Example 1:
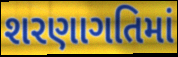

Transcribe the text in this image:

શરણાગતિમાં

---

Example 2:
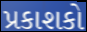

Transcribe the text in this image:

પ્રકાશકો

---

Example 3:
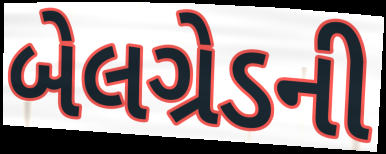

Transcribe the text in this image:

બેલગ્રેડની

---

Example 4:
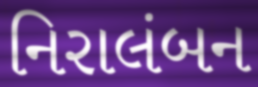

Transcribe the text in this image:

નિરાલંબન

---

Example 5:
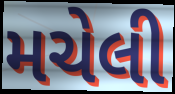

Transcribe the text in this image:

મચેલી